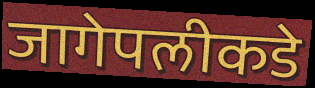
जागेपलीकडे